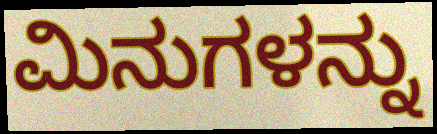
ಮಿನುಗಳನ್ನು